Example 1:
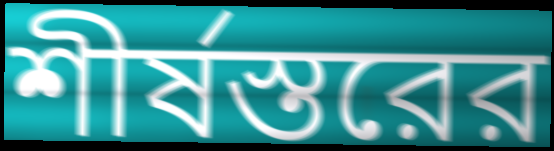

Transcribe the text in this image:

শীর্ষস্তরের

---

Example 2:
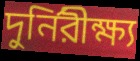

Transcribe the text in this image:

দুর্নিরীক্ষ্য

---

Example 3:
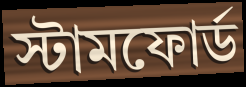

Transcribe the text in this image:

স্টামফোর্ড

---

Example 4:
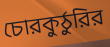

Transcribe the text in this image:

চোরকুঠুরির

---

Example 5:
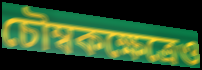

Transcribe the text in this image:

চৌম্বকক্ষেত্রেও